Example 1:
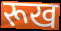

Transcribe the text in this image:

रूख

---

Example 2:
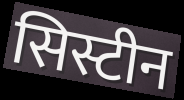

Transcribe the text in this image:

सिस्टीन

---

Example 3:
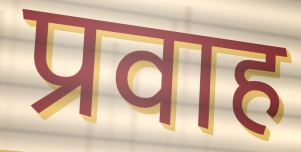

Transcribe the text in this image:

प्रवाह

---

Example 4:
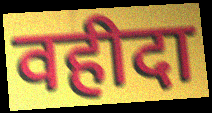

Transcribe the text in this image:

वहीदा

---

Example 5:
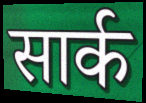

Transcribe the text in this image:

सार्क